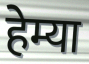
हेम्या